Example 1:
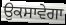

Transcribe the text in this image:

ਉਕਸਾਵੇਗਾ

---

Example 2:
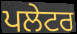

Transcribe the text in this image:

ਪਲੇਟਰ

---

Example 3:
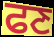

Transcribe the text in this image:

ਫਣ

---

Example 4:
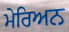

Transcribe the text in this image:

ਮੇਰਿਅਨ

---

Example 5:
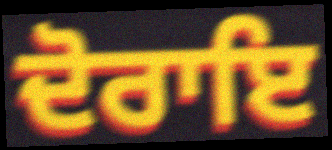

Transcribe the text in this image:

ਦੋਰਾਇ